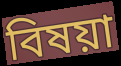
বিষয়া